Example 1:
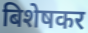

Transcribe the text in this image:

बिशेषकर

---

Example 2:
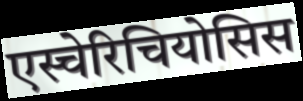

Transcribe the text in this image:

एस्चेरिचियोसिस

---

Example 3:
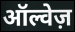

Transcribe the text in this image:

ऑल्वेज़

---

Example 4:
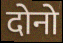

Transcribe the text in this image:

दोनो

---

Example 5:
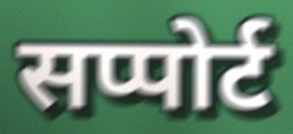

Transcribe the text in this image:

सप्पोर्ट